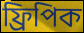
ফ্রিপিক